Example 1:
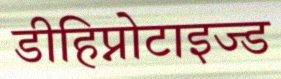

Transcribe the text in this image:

डीहिप्नोटाइज्ड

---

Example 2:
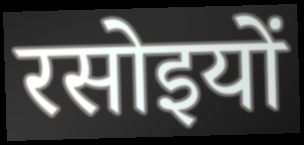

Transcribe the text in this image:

रसोइयों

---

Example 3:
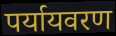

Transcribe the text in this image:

पर्यायवरण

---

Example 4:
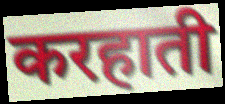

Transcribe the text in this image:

करहाती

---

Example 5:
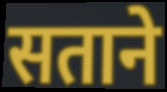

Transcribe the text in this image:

सताने